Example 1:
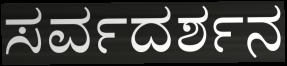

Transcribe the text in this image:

ಸರ್ವದರ್ಶನ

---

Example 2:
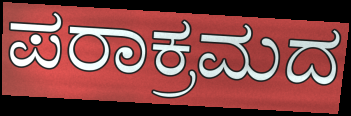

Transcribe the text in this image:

ಪರಾಕ್ರಮದ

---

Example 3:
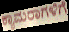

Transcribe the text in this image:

ಕ್ಯಾಮರಾಗಳಿಗೆ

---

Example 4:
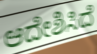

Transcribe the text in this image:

ಆದೇಶಿಸಿದೆ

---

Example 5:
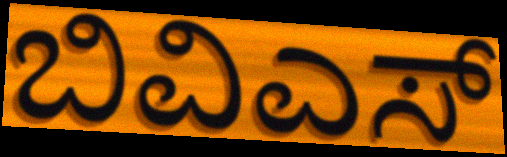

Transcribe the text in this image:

ಬಿವಿಎಸ್